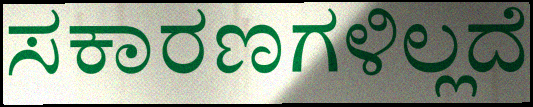
ಸಕಾರಣಗಳಿಲ್ಲದೆ